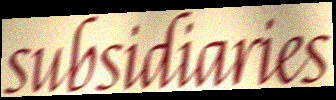
subsidiaries